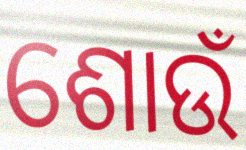
ଶୋଉଁ